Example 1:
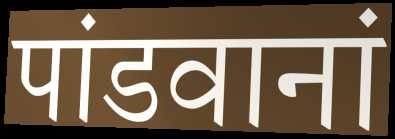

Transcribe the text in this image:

पांडवानां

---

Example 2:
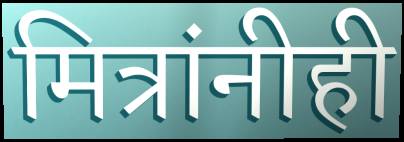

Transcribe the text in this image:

मित्रांनीही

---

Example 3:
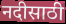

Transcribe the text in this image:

नदीसाठी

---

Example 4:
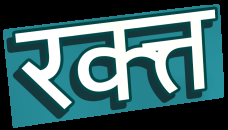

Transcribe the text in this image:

रक्त्त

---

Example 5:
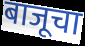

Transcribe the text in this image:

बाजूचा